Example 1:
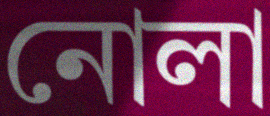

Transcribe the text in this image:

নোলা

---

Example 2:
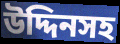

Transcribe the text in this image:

উদ্দিনসহ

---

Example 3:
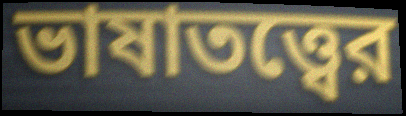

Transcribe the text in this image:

ভাষাতত্ত্বের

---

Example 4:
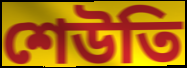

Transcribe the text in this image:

শেউতি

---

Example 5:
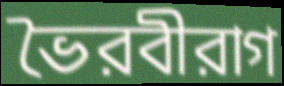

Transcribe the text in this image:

ভৈরবীরাগ